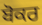
ਬੋਕਰ